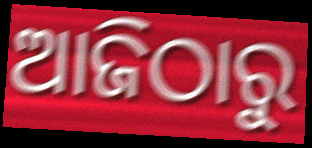
ଆଜିଠାରୁ